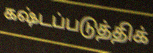
கஷ்டப்படுத்திக்